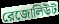
রেজোলিউট